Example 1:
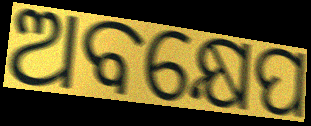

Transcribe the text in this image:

ଅବକ୍ଷେପ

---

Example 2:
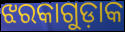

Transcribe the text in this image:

ଝରକାଗୁଡ଼ାକ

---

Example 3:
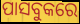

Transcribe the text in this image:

ପାସବୁକରେ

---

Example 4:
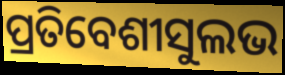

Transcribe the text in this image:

ପ୍ରତିବେଶୀସୁଲଭ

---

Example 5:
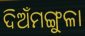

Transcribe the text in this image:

ଦିଅଁମଙ୍ଗୁଳା